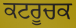
ਕਟਰੂਚਕ